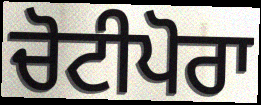
ਚੋਟੀਪੋਰਾ